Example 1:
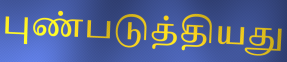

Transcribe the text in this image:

புண்படுத்தியது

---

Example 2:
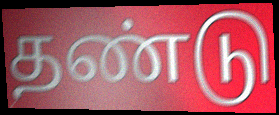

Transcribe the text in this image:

தண்டு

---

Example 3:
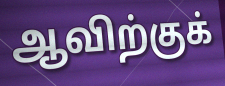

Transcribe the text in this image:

ஆவிற்குக்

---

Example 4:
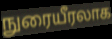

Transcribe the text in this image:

நுரையீரலாக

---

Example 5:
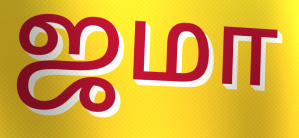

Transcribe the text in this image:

ஜமா